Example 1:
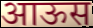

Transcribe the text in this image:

आऊस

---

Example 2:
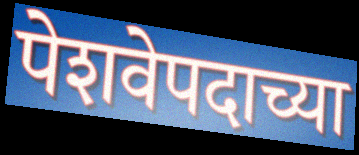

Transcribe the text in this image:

पेशवेपदाच्या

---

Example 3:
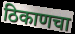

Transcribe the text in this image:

ठिकाणचा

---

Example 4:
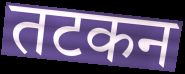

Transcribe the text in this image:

तटकन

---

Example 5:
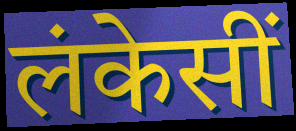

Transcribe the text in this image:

लंकेसीं